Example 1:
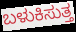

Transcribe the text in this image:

ಬಳುಕಿಸುತ್ತ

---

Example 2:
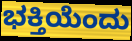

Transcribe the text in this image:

ಭಕ್ತಿಯೆಂದು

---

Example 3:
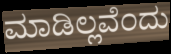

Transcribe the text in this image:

ಮಾಡಿಲ್ಲವೆಂದು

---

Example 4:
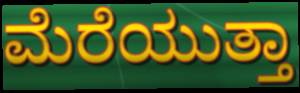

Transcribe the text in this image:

ಮೆರೆಯುತ್ತಾ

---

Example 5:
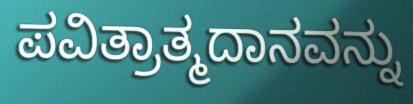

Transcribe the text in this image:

ಪವಿತ್ರಾತ್ಮದಾನವನ್ನು